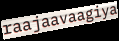
raajaavaagiya